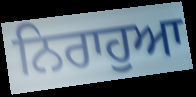
ਨਿਰਾਹੁਆ